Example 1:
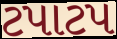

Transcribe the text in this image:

ટપાટપ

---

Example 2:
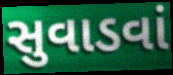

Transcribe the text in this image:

સુવાડવાં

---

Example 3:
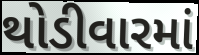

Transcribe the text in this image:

થોડીવારમાં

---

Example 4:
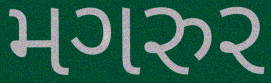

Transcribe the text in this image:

મગરુર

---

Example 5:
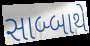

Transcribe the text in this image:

સાબ્બાથે